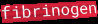
fibrinogen